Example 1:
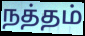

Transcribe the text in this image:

நத்தம்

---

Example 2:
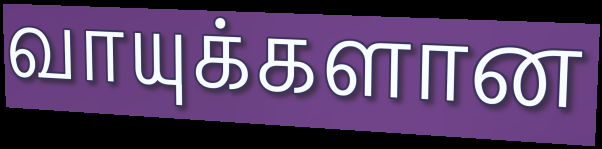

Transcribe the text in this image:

வாயுக்களான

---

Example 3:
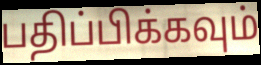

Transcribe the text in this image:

பதிப்பிக்கவும்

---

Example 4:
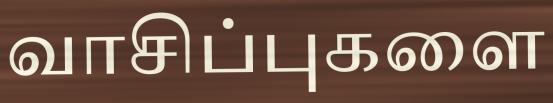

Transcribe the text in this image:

வாசிப்புகளை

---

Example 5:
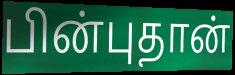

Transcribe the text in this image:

பின்புதான்